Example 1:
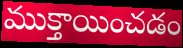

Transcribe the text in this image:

ముక్తాయించడం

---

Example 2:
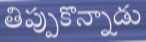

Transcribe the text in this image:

తిప్పుకొన్నాడు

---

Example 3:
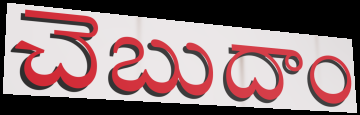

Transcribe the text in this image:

చెబుదాం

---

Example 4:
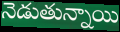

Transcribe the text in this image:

నెడుతున్నాయి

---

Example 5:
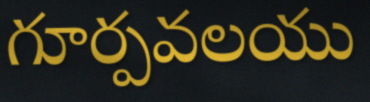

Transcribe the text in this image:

గూర్పవలయు